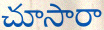
చూసారా